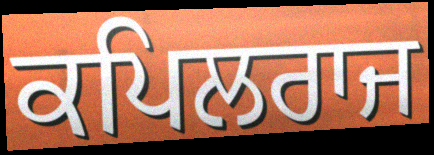
ਕਪਿਲਰਾਜ